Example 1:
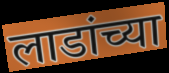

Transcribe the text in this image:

लाडांच्या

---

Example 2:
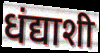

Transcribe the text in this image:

धंद्याशी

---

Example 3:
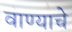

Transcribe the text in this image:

वाण्याचे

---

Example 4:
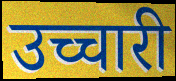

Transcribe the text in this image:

उच्चारी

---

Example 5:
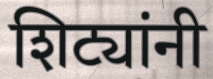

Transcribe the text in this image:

शिट्यांनी